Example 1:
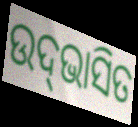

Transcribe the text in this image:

ଉଦ୍‌ଭାସିତ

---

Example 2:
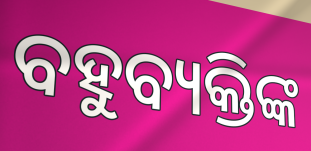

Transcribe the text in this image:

ବହୁବ୍ୟକ୍ତିଙ୍କ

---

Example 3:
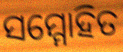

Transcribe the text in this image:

ସମ୍ମୋହିତ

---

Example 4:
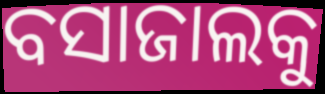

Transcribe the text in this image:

ବସାଜାଲକୁ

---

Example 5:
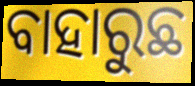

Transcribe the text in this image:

ବାହାରୁଛ